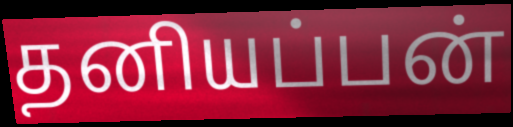
தனியப்பன்